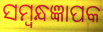
ସମ୍ବନ୍ଧଜ୍ଞାପକ